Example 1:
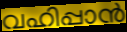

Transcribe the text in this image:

വഹിപ്പാൻ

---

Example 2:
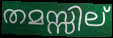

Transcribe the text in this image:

തമസ്സില്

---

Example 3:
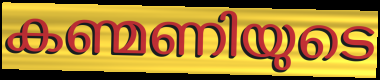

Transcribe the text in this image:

കണ്മണിയുടെ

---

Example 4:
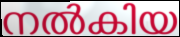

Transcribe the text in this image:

നൽകിയ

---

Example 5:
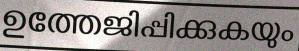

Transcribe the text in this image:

ഉത്തേജിപ്പിക്കുകയും